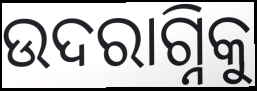
ଉଦରାଗ୍ନିକୁ